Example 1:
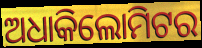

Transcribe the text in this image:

ଅଧାକିଲୋମିଟର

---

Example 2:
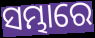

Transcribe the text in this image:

ସମ୍ଭାରେ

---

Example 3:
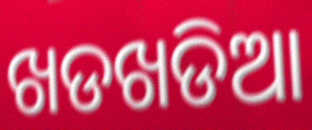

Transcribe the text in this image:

ଖଡଖଡିଆ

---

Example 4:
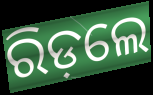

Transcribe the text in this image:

ରିଡ଼ଲେ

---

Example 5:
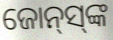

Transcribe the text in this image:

ଜୋନ୍‌ସ୍‌ଙ୍କ